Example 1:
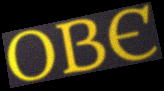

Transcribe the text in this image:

OBE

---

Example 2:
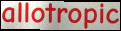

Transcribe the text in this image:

allotropic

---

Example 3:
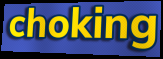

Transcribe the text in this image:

choking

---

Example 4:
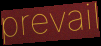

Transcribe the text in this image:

prevail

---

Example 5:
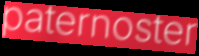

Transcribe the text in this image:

paternoster